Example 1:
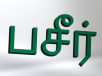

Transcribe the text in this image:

பசீர்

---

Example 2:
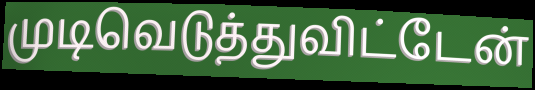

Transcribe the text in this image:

முடிவெடுத்துவிட்டேன்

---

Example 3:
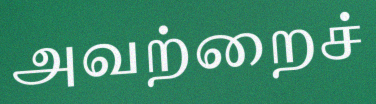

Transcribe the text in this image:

அவற்றைச்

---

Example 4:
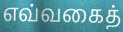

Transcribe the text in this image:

எவ்வகைத்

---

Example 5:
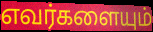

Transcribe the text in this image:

எவர்களையும்